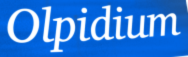
Olpidium